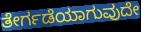
ತೇರ್ಗಡೆಯಾಗುವುದೇ